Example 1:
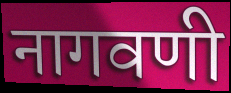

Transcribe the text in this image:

नागवणी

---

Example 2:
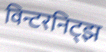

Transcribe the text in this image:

विन्टरनिट्झ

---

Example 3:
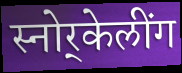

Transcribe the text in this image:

स्नोर्केलींग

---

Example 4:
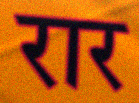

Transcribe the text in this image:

रार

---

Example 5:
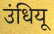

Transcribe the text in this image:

उंधियू